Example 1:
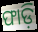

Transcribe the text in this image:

ଫାଡ଼ି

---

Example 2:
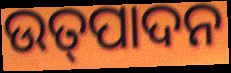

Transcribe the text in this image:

ଉତ୍‌ପାଦନ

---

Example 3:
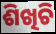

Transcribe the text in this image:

ଶିଖିଚି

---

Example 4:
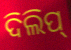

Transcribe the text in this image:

ଦିଲିପ୍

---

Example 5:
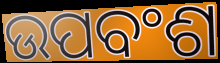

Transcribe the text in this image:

ଉପବଂଶ